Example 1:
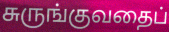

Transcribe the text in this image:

சுருங்குவதைப்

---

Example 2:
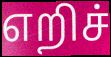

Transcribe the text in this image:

எறிச்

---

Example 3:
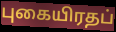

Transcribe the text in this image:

புகையிரதப்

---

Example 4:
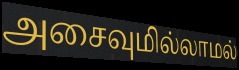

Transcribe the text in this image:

அசைவுமில்லாமல்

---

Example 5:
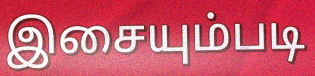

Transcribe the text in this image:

இசையும்படி